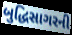
બુદ્ધિસાગરની